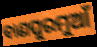
ବାଣପୁରମୁଆଁ